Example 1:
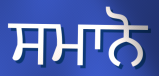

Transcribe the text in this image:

ਸਮਾਨੋ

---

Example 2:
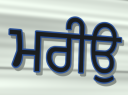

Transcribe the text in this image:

ਮਰੀਉ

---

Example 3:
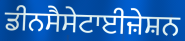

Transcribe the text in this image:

ਡੀਨਸੈਸੇਟਾਈਜ਼ੇਸ਼ਨ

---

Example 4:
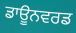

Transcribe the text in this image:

ਡਾਊਨਵਰਡ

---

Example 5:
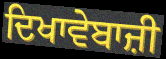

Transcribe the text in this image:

ਦਿਖਾਵੇਬਾਜ਼ੀ